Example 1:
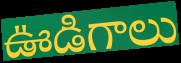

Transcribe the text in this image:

ఊడిగాలు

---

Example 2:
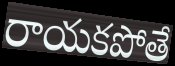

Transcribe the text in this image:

రాయకపోతే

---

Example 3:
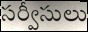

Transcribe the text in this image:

సర్వీసులు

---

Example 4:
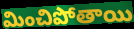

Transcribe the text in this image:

మించిపోతాయి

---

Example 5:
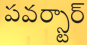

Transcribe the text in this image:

పవర్స్టార్